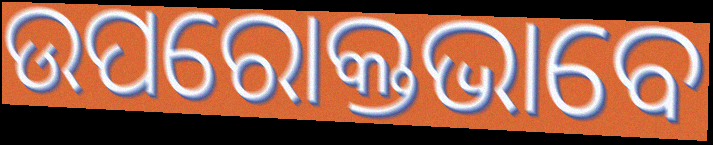
ଉପରୋକ୍ତଭାବେ